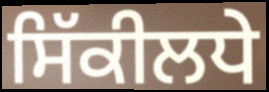
ਸਿੱਕੀਲਧੇ